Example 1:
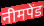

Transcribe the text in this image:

नीमपेंड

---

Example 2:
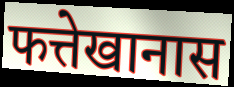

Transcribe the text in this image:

फत्तेखानास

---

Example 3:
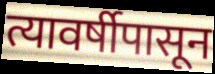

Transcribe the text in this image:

त्यावर्षीपासून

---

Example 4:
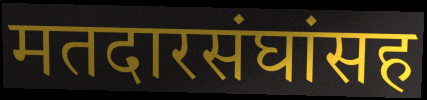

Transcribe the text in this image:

मतदारसंघांसह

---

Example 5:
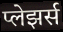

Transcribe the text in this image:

प्लेझर्स